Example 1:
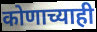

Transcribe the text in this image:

कोणाच्याही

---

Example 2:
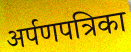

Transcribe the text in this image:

अर्पणपत्रिका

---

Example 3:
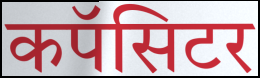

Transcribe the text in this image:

कपॅसिटर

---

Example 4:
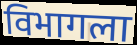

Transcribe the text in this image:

विभागला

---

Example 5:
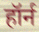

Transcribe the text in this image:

हॉर्न